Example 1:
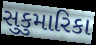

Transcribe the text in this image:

સુકુમારિકા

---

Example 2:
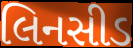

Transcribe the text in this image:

લિનસીડ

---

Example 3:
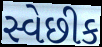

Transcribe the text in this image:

સ્વેછીક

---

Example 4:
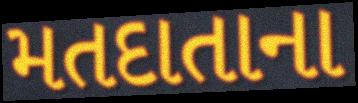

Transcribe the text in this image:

મતદાતાના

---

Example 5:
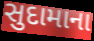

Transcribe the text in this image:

સુદામાના